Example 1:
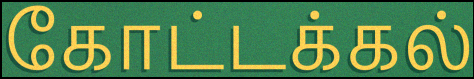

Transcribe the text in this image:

கோட்டக்கல்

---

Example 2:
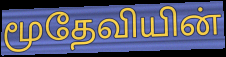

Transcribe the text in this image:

மூதேவியின்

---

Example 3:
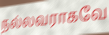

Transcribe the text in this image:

நல்லவராகவே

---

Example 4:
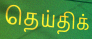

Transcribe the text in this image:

தெய்திக்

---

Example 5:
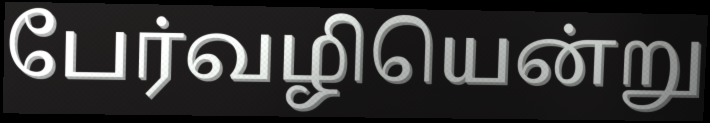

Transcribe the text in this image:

பேர்வழியென்று